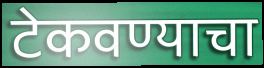
टेकवण्याचा